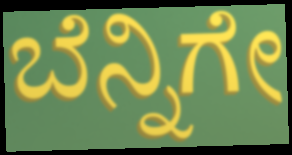
ಬೆನ್ನಿಗೇ